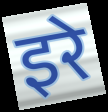
इरे